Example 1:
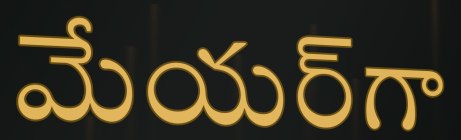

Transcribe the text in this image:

మేయర్‌గా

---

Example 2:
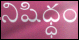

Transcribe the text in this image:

నిషిధ్ధం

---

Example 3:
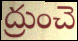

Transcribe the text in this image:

ద్రుంచె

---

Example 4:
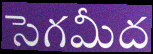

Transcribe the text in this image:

సెగమీద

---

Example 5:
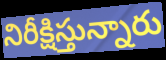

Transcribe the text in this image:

నిరీక్షిస్తున్నారు